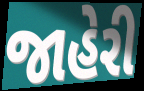
જાહેરી